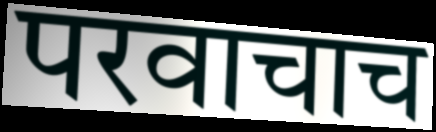
परवाचाच